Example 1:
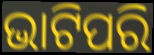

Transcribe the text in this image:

ଭାଟିପରି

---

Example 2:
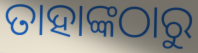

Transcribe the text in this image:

ତାହାଙ୍କଠାରୁ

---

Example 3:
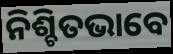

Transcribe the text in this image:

ନିଶ୍ଚିତଭାବେ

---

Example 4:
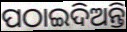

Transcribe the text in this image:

ପଠାଇଦିଅନ୍ତି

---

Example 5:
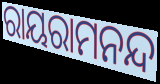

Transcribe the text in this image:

ରାୟରାମନନ୍ଦ